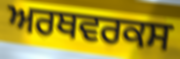
ਅਰਥਵਰਕਸ